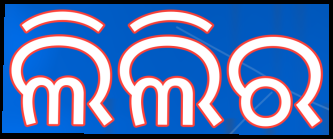
ଲିଲିର